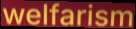
welfarism